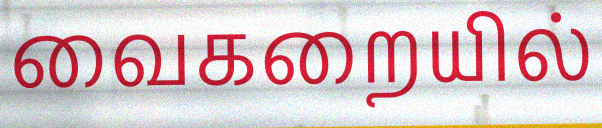
வைகறையில்